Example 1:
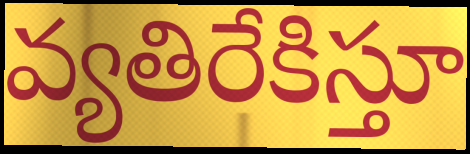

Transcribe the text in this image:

వ్యతిరేకిస్తూ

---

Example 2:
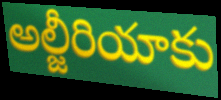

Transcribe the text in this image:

అల్జీరియాకు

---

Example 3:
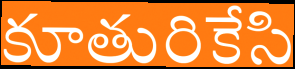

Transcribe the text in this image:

కూతురికేసి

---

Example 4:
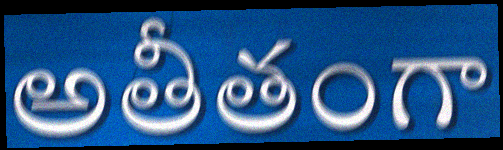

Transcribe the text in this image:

అతీతంగా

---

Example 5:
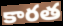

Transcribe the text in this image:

కారత